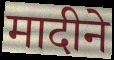
मादीने